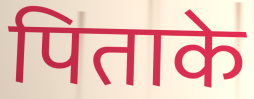
पिताके